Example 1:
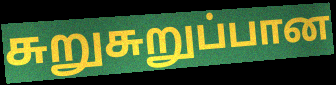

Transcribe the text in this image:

சுறுசுறுப்பான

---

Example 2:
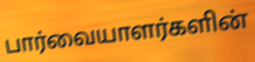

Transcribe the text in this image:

பார்வையாளர்களின்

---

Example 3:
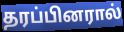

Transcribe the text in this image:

தரப்பினரால்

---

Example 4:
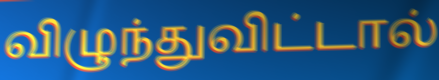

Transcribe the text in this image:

விழுந்துவிட்டால்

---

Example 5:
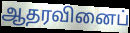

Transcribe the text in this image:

ஆதரவினைப்